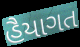
હૈયાગત